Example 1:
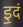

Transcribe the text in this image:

इ॒दं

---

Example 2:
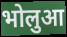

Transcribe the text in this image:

भोलुआ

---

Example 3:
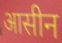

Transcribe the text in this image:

आसीन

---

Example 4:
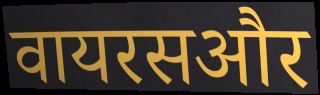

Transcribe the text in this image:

वायरसऔर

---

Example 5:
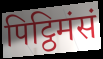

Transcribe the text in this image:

पिट्ठिमंसं